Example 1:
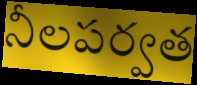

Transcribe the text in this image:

నీలపర్వత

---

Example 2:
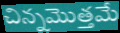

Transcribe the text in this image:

చిన్నమొత్తమే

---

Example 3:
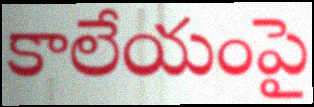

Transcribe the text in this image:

కాలేయంపై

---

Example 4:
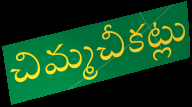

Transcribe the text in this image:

చిమ్మచీకట్లు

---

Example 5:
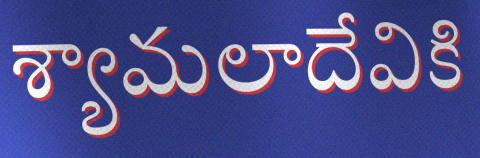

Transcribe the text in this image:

శ్యామలాదేవికి